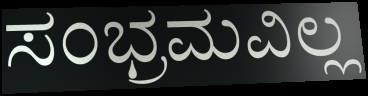
ಸಂಭ್ರಮವಿಲ್ಲ